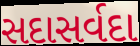
સદાસર્વદા